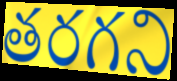
తరగని